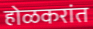
होळकरांत